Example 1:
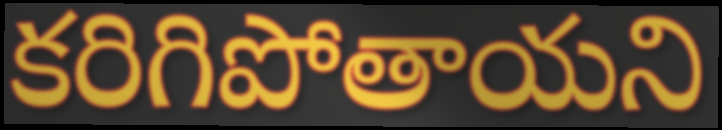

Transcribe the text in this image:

కరిగిపోతాయని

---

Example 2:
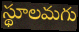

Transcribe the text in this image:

స్థూలమగు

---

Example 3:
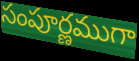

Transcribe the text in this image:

సంపూర్ణముగా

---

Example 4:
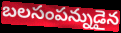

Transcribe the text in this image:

బలసంపన్నుడైన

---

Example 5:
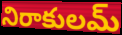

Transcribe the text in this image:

నిరాకులమ్